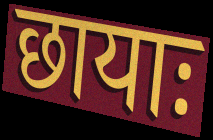
छायाः